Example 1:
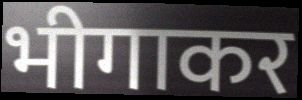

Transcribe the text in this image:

भीगाकर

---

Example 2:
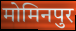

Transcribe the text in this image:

मोमिनपुर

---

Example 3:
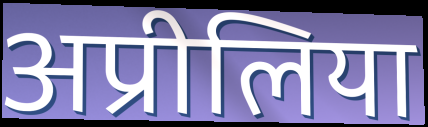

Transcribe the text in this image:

अप्रीलिया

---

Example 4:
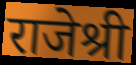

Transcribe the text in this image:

राजेश्री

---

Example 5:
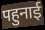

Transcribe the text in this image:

पहुनाई